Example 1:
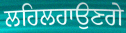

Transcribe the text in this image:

ਲਹਿਲਹਾਉਣਗੇ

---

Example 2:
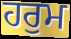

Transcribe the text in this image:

ਹਰੁਮ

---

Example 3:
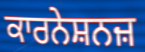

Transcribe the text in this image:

ਕਾਰਨੇਸ਼ਨਜ਼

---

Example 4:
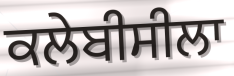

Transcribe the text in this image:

ਕਲੇਬੀਸੀਲਾ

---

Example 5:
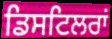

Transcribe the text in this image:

ਡਿਸਟਿਲਰਾਂ